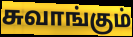
சுவாங்கும்